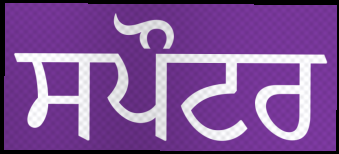
ਸਪੌਟਰ